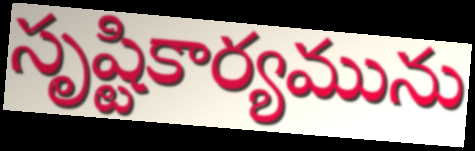
సృష్టికార్యమును